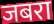
जबरा